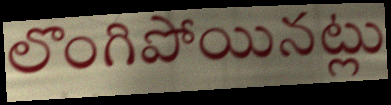
లొంగిపోయినట్లు